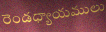
రెండధ్యాయములు